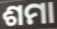
ଶମା